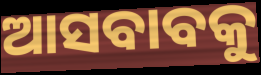
ଆସବାବକୁ